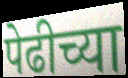
पेढीच्या